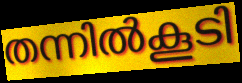
തന്നിൽകൂടി